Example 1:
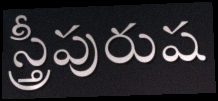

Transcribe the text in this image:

స్త్రీపురుష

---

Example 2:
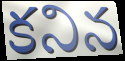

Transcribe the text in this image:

కనిన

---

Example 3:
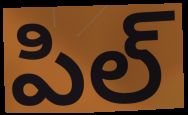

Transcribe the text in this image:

పిల్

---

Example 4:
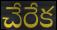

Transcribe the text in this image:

చేరేక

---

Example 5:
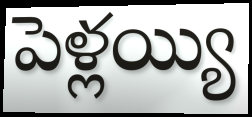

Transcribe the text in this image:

పెళ్లయ్యి